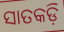
ସାତକଡ଼ି